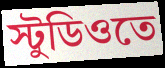
স্টুডিওতে